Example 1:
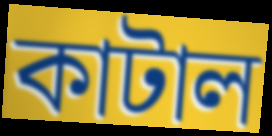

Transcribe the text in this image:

কাটাল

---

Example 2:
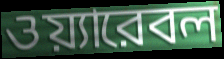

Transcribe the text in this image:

ওয়্যারেবল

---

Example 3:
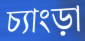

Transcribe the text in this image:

চ্যাংড়া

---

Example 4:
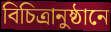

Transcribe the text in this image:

বিচিত্রানুষ্ঠানে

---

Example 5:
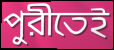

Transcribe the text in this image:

পুরীতেই